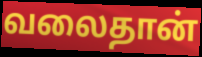
வலைதான்